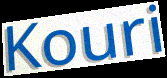
Kouri